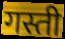
गस्ती